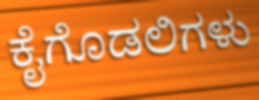
ಕೈಗೊಡಲಿಗಳು